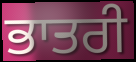
ਭਾਤਰੀ